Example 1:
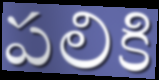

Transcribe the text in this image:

పలికి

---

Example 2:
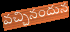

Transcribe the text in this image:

వచ్చినందున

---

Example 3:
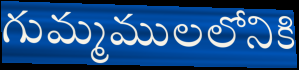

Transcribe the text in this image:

గుమ్మములలోనికి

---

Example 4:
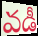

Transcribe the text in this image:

వడీ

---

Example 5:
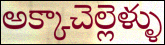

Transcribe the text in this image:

అక్కాచెల్లెళ్ళు